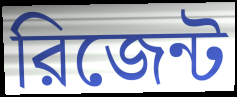
রিজেন্ট